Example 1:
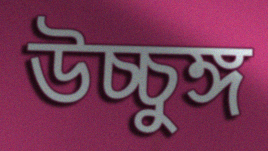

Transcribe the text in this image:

উচ্চুঙ্গ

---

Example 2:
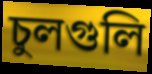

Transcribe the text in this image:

চুলগুলি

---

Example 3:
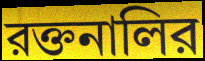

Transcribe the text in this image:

রক্তনালির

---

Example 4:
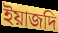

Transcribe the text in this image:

ইয়াজদি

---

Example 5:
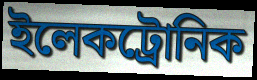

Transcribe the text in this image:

ইলেকট্রোনিক